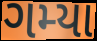
ગમ્યા